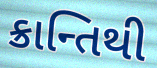
ક્રાન્તિથી